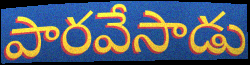
పారవేసాడు